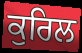
ਕੁਰਿਲ